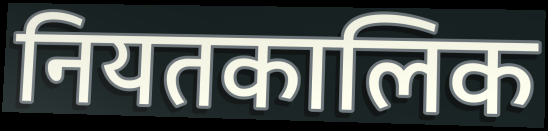
नियतकालिक